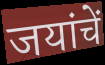
जयांचें